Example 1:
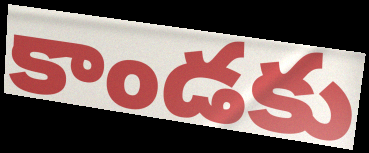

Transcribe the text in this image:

కాండకు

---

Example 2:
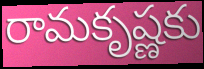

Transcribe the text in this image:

రామకృష్ణకు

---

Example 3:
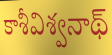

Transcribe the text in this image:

కాశీవిశ్వనాథ్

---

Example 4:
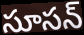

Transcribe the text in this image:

సూసన్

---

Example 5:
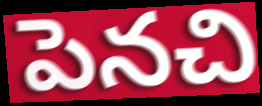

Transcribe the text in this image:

పెనచి